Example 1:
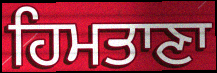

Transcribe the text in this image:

ਹਿਮਤਾਣਾ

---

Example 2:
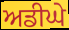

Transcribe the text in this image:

ਅਡੀਘੇ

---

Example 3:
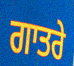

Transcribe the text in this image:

ਗਾਤਰੇ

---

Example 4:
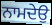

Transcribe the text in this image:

ਨਾਮਦੇਉ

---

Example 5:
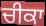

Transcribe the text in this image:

ਚੀਕਾ